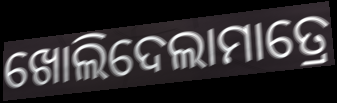
ଖୋଲିଦେଲାମାତ୍ରେ